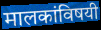
मालकांविषयी